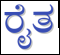
ರೈತ